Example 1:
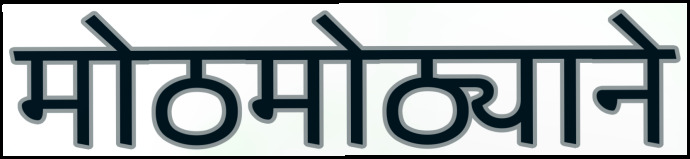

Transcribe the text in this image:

मोठमोठ्याने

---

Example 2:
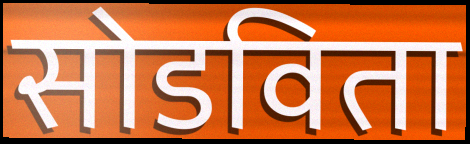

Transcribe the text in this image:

सोडविता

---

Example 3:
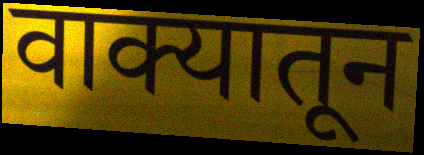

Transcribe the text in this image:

वाक्यातून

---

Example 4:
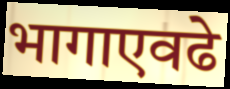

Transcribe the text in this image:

भागाएवढे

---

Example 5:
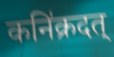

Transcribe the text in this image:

कनि॑क्रदत्